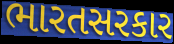
ભારતસરકાર